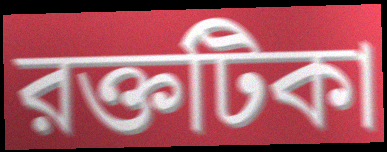
রক্তটিকা